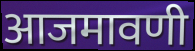
आजमावणी